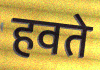
हवते